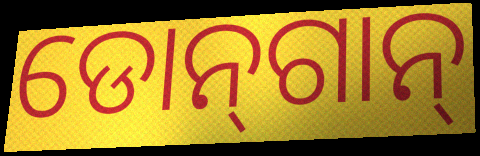
ଡୋନ୍‌ଗାନ୍